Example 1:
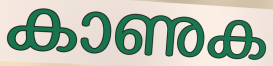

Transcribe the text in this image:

കാണുക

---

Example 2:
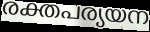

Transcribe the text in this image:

രക്തപര്യയന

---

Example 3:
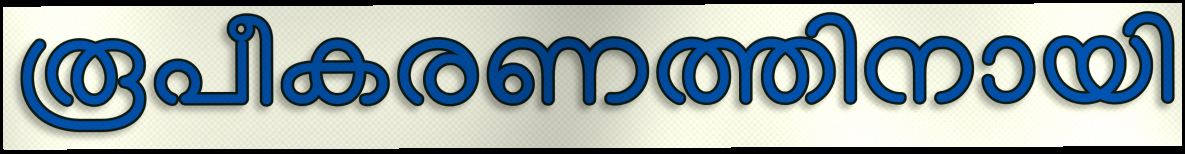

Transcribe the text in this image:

രൂപീകരണത്തിനായി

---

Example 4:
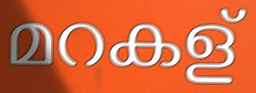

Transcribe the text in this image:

മറകള്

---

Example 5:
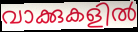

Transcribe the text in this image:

വാക്കുകളിൽ